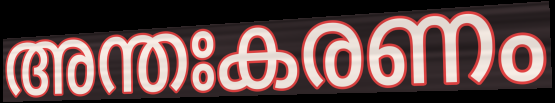
അന്തഃകരണം